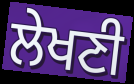
ਲੇਖਣੀ